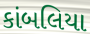
કાંબલિયા